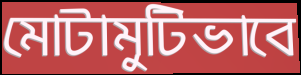
মোটামুটিভাবে